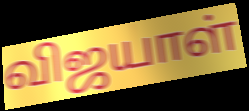
விஜயாள்